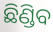
ଛିଣ୍ଡିବ